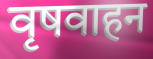
वृषवाहन